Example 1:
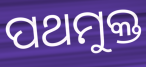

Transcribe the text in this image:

ପଥମୁକ୍ତ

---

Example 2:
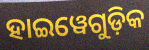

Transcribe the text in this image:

ହାଇୱେଗୁଡ଼ିକ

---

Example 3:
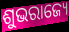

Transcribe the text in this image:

ଶୁଭରାଜ୍ୟେ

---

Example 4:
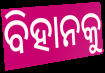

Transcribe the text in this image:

ବିହାନକୁ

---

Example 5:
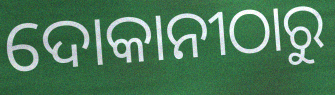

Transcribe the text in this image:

ଦୋକାନୀଠାରୁ